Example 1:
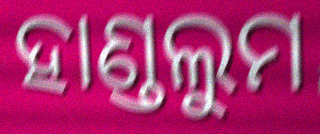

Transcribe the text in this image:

ହାଣ୍ଡଲୁମ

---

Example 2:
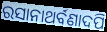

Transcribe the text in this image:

ରସାନାଥର୍ବଣାଦପି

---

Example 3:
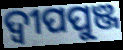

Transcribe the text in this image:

ଦ୍ଵୀପପୁଞ୍ଜ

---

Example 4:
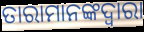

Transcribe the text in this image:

ତାରାମାନଙ୍କଦ୍ୱାରା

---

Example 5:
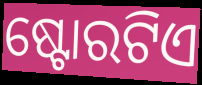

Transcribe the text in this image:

ଷ୍ଟୋରଟିଏ